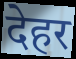
देहर